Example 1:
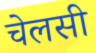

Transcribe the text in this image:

चेलसी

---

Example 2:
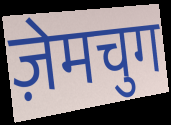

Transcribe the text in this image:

ज़ेमचुग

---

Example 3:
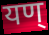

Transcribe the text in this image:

यण्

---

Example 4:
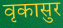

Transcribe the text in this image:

वृकासुर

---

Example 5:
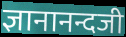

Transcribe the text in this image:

ज्ञानानन्दजी